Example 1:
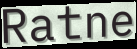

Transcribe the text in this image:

Ratne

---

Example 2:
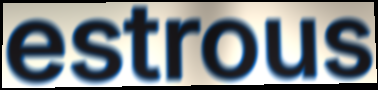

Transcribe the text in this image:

estrous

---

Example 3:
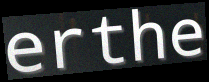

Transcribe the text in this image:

erthe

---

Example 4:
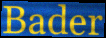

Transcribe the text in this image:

Bader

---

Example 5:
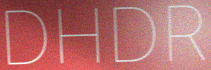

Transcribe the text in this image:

DHDR